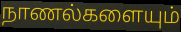
நாணல்களையும்